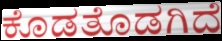
ಕೊಡತೊಡಗಿದೆ